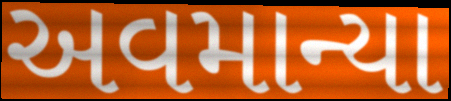
અવમાન્યા